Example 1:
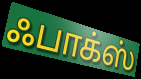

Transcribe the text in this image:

ஃபாக்ஸ்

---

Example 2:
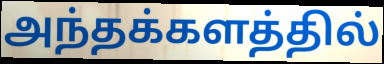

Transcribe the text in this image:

அந்தக்களத்தில்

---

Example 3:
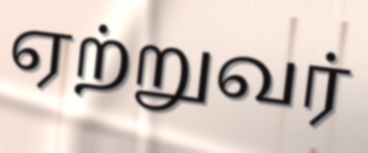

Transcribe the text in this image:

ஏற்றுவர்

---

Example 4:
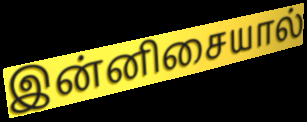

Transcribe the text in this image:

இன்னிசையால்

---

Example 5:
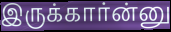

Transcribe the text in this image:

இருக்கார்ன்னு